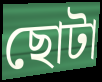
ছোটা